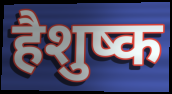
हैशुष्क